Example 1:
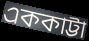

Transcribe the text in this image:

এককাট্টা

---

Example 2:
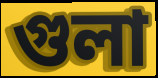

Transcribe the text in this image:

গুলা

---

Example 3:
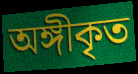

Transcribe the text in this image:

অঙ্গীকৃত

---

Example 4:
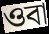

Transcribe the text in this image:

ওবা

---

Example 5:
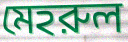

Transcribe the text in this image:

মেহরুল